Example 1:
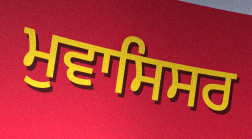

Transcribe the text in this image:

ਮੁਵਾਸਿਸਰ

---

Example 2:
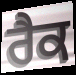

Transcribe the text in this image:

ਰੈਕ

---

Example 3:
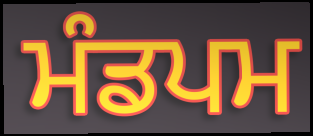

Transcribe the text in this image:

ਮੰਡਪਮ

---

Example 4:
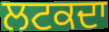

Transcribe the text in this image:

ਲਟਕਦਾ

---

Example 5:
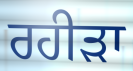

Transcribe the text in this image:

ਰਹੀੜਾ